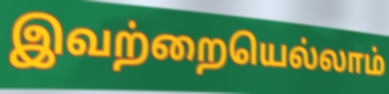
இவற்றையெல்லாம்